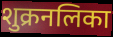
शुक्रनलिका